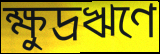
ক্ষুদ্রঋণে